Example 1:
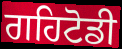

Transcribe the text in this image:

ਗਹਿਟੋਡੀ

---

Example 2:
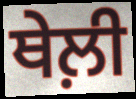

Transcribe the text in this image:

ਥੇਲ਼ੀ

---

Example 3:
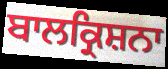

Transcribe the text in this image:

ਬਾਲਕ੍ਰਿਸ਼ਨਾ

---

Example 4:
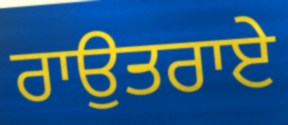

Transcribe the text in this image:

ਰਾਉਤਰਾਏ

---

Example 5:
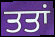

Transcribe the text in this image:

ਤਤਾਂ